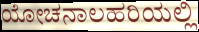
ಯೋಚನಾಲಹರಿಯಲ್ಲಿ